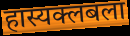
हास्यक्लबला